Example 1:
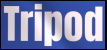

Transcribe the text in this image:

Tripod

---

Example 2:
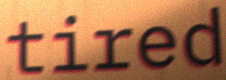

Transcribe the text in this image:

tired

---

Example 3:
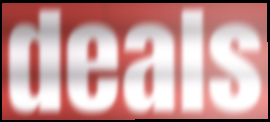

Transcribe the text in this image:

deals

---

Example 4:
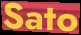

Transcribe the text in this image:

Sato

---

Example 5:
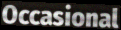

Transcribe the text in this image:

Occasional